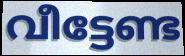
വീട്ടേണ്ട